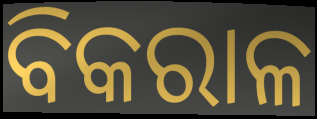
ବିକରାଳ